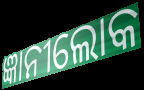
ଜ୍ଞାନୀଲୋକ